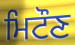
ਮਿਟੌਣ